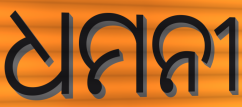
ଧମନୀ